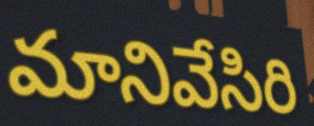
మానివేసిరి